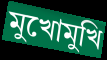
মুখোমুখি